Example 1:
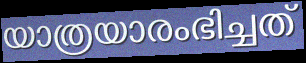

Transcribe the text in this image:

യാത്രയാരംഭിച്ചത്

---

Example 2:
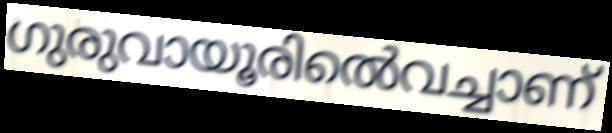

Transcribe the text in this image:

ഗുരുവായൂരിൽെവച്ചാണ്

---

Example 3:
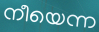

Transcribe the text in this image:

നീയെന്ന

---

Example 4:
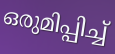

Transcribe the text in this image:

ഒരുമിപ്പിച്ച്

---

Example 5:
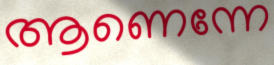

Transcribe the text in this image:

ആണെന്നേ